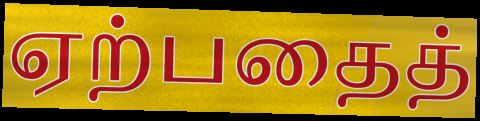
ஏற்பதைத்